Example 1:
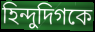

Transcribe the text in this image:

হিন্দুদিগকে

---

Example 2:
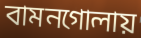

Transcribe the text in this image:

বামনগোলায়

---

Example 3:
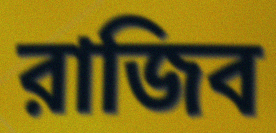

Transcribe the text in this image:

রাজিব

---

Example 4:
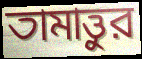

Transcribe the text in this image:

তামাত্তুর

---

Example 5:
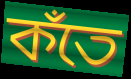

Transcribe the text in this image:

কঁতে